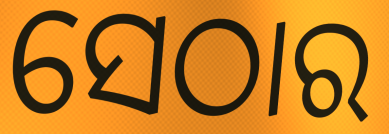
ସେଠାର